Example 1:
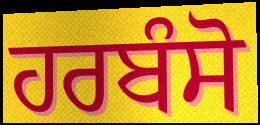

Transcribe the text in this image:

ਹਰਬੰਸੋ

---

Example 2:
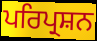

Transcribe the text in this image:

ਪਰਿਪ੍ਰਸ਼ਨ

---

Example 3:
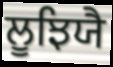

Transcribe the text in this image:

ਲੂਝਿਯੈ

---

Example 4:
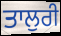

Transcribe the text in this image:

ਤਾਲੁਰੀ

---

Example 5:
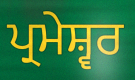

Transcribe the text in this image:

ਪ੍ਰਮੇਸ਼੍ਵਰ